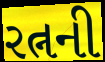
રત્નની